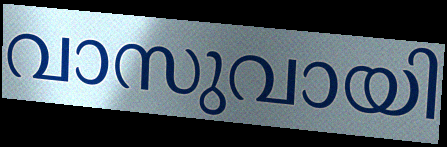
വാസുവായി